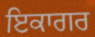
ਇਕਾਗਰ